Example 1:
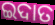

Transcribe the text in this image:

ଇଦାତ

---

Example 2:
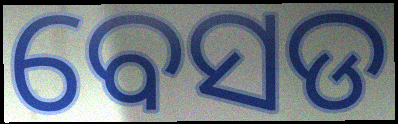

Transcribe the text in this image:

ବେସଡ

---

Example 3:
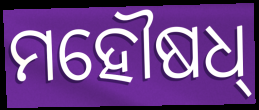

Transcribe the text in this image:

ମହୌଷଧ୍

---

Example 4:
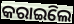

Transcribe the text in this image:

କରାଇିଲେ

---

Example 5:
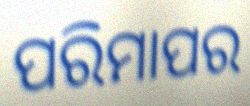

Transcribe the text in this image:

ପରିମାପର